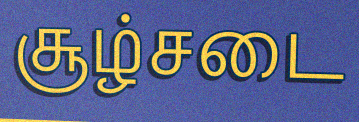
சூழ்சடை